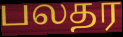
பலதர